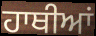
ਹਾਥੀਆਂ